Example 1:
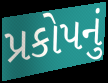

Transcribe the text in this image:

પ્રકોપનું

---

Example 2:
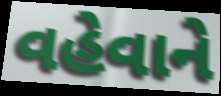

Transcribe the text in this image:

વહેવાને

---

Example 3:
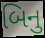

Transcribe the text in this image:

બિનુ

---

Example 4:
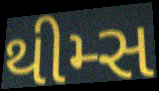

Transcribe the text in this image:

થીમ્સ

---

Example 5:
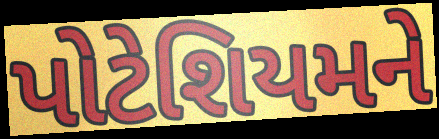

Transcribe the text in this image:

પોટેશિયમને